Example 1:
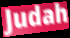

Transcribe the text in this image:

Judah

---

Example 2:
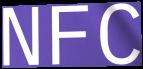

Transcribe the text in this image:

NFC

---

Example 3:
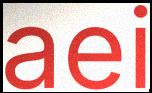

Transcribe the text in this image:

aei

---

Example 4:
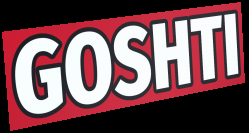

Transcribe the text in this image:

GOSHTI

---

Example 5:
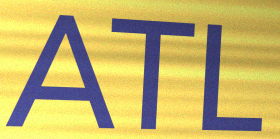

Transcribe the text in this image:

ATL